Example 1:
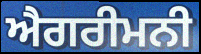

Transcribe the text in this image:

ਐਗਰੀਮਨੀ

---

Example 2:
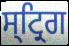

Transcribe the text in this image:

ਸ੍ਟ੍ਰਿਗ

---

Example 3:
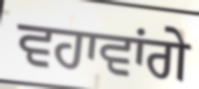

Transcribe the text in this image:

ਵਹਾਵਾਂਗੇ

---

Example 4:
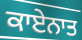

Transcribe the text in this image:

ਕਾਏਨਾਤ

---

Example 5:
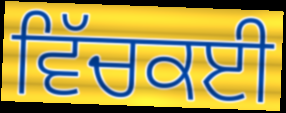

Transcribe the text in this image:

ਵਿੱਚਕਈ